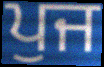
ਪੁਜ